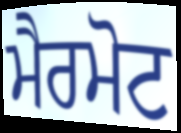
ਮੈਰਮੋਟ